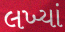
લખ્યાં